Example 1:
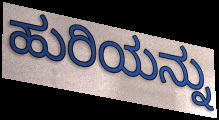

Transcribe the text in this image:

ಹುರಿಯನ್ನು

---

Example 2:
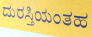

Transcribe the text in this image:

ದುರಸ್ತಿಯಂತಹ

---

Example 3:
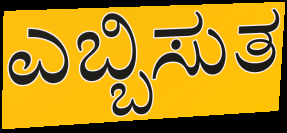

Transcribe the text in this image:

ಎಬ್ಬಿಸುತ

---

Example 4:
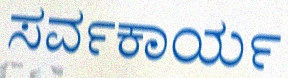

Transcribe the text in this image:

ಸರ್ವಕಾರ್ಯ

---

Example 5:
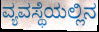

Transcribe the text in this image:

ವ್ಯವಸ್ಥೆಯಲ್ಲಿನ